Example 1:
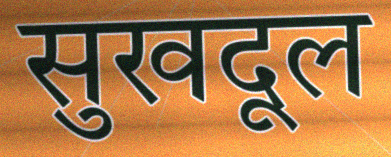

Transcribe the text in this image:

सुखदूल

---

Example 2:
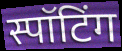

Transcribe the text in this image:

स्पॉटिंग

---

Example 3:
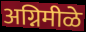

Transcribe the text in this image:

अग्निमीळे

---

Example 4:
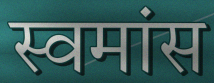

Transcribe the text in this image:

स्वमांस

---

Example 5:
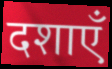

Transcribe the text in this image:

दशाएँ